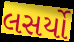
લસર્યો